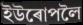
ইউৰোপলৈ